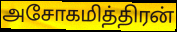
அசோகமித்திரன்